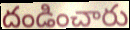
దండించారు